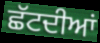
ਛੱਟਦੀਆਂ